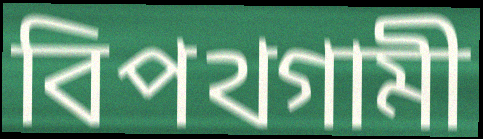
বিপথগামী